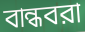
বান্ধবরা